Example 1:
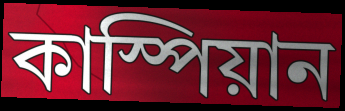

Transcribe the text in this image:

কাস্পিয়ান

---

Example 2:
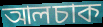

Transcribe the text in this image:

আলচাক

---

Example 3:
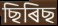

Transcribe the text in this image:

ছিৰিছ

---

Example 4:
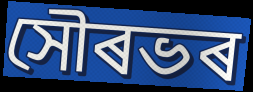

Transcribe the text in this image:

সৌৰভৰ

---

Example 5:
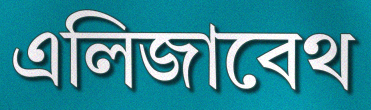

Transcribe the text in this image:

এলিজাবেথ